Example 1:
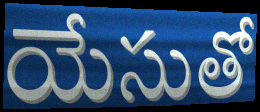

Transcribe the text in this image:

యేసుతో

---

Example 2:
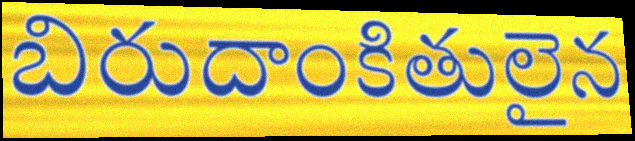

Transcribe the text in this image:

బిరుదాంకితులైన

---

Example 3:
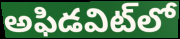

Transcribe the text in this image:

అఫిడవిట్‌లో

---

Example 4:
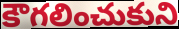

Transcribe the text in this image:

కౌగలించుకుని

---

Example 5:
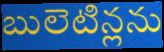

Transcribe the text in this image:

బులెటిన్లను